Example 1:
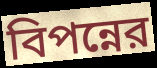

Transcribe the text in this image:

বিপন্নের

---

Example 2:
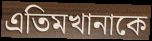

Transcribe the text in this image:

এতিমখানাকে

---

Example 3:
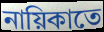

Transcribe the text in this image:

নায়িকাতে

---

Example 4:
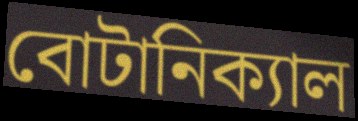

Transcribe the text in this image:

বোটানিক্যাল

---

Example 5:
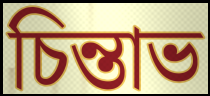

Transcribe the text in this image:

চিন্তাভ